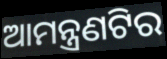
ଆମନ୍ତ୍ରଣଟିର